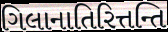
ગિલાનાતિરિત્તન્તિ